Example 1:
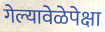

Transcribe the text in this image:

गेल्यावेळेपेक्षा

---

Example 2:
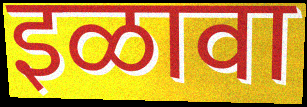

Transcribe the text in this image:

इळावा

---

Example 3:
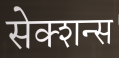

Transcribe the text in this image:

सेक्शन्स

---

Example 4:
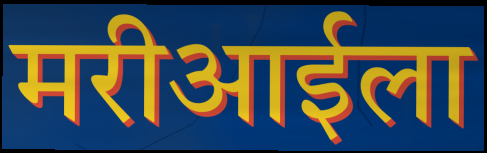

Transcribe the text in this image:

मरीआईला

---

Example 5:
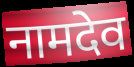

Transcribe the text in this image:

नामदेव